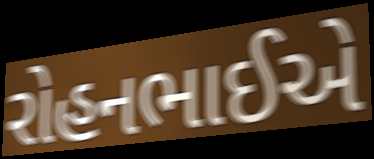
રોહનભાઈએ